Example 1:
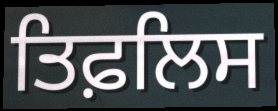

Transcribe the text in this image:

ਤਿਫ਼ਲਿਸ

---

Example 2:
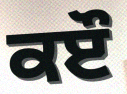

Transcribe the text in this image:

ਕੲੌ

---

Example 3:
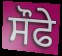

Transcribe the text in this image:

ਸੌਫੇ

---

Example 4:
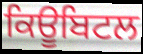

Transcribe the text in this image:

ਕਿਊਬਿਟਲ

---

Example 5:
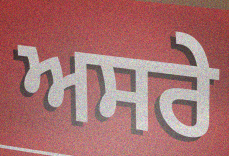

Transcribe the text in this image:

ਅਸਰੇ